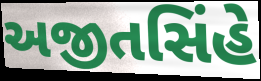
અજીતસિંહે